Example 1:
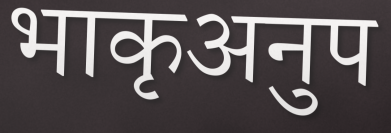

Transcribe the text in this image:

भाकृअनुप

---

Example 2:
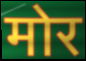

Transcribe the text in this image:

मोर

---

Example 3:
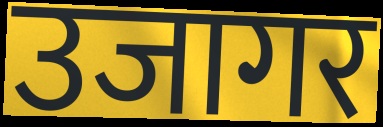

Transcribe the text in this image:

उजागर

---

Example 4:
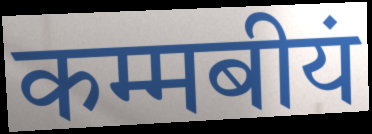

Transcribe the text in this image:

कम्मबीयं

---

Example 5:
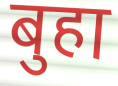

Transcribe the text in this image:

बुहा